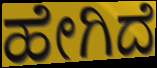
ಹೇಗಿದೆ